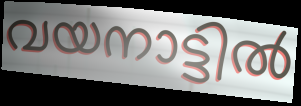
വയനാട്ടിൽ